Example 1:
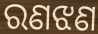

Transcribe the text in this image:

ରଣଝଣ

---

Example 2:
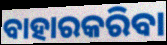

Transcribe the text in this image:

ବାହାରକରିବା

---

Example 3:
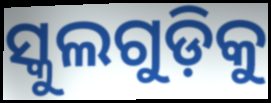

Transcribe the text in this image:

ସ୍କୁଲଗୁଡ଼ିକୁ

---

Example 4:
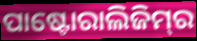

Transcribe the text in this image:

ପାଷ୍ଟୋରାଲିଜିମ୍‌ର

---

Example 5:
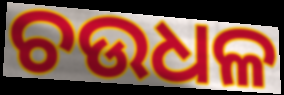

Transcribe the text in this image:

ଚଉଧଳ